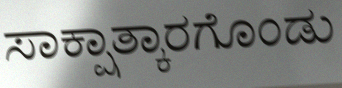
ಸಾಕ್ಷಾತ್ಕಾರಗೊಂಡು